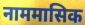
नाममासिक